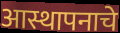
आस्थापनाचे